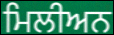
ਮਿਲੀਅਨ